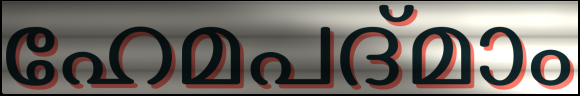
ഹേമപദ്മാം